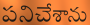
పనిచేశాను